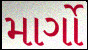
માર્ગો